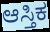
ಆಸ್ತಿಕ